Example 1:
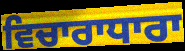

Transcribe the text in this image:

ਵਿਚਾਰਾਧਾਰਾ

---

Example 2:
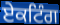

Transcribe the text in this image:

ਏਕਟਿੰਗ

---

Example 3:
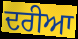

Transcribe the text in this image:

ਦਰੀਆ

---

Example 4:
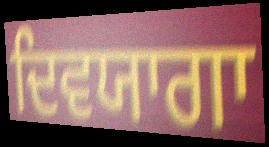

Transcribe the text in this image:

ਦਿਵਯਾਗਾ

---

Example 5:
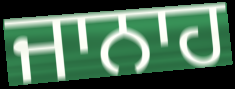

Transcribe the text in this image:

ਜਾਨਾਹ